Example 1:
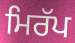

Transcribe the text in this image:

ਮਿਰੱਪ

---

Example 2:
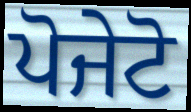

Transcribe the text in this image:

ਪੋਜੇਟੋ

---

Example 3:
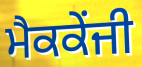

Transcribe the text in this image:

ਮੈਕਕੇਂਜੀ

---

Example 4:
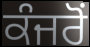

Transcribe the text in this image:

ਕੰਜਰੋਂ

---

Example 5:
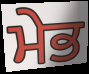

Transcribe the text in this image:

ਮੇਭ